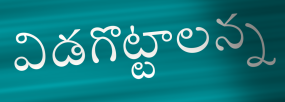
విడగొట్టాలన్న